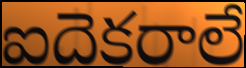
ఐదెకరాలే